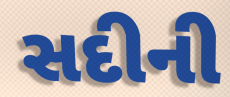
સદીની